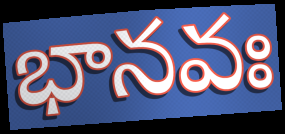
భానవః